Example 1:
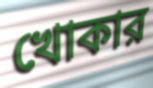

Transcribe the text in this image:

খোকার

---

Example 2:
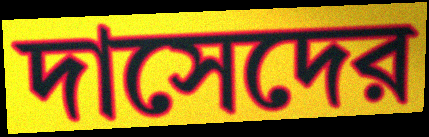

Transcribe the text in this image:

দাসেদের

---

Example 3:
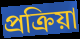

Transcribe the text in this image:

প্রক্রিয়া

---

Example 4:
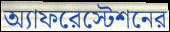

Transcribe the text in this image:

অ্যাফরেস্টেশনের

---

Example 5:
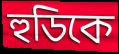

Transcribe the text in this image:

হুডিকে